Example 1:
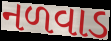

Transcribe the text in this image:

નળવાડ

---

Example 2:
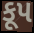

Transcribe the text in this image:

કૂપ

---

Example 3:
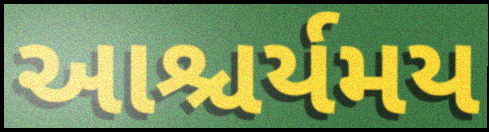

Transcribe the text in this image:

આશ્ચર્યમય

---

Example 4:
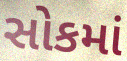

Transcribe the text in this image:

સોકમાં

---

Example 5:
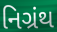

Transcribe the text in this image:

નિગ્રંથ